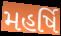
મહર્ષિ